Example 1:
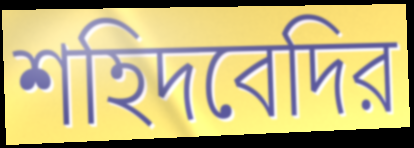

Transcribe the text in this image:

শহিদবেদির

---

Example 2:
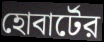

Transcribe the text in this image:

হোবার্টের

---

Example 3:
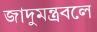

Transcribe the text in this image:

জাদুমন্ত্রবলে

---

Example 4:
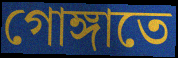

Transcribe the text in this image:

গোঙ্গাতে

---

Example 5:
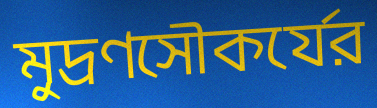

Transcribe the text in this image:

মুদ্রণসৌকর্যের